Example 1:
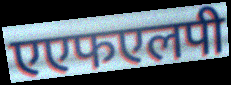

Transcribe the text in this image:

एएफएलपी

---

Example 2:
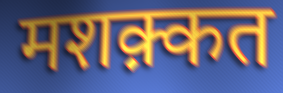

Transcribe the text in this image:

मशक़्कत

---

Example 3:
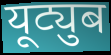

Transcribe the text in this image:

यूट्युब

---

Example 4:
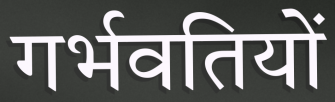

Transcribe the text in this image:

गर्भवतियों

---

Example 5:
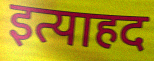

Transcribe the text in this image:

इत्याहद